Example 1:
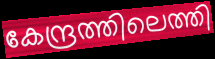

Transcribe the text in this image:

കേന്ദ്രത്തിലെത്തി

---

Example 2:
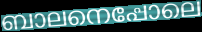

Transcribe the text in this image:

ബാലനെപ്പോലെ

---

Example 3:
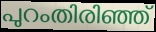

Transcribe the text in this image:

പുറംതിരിഞ്ഞ്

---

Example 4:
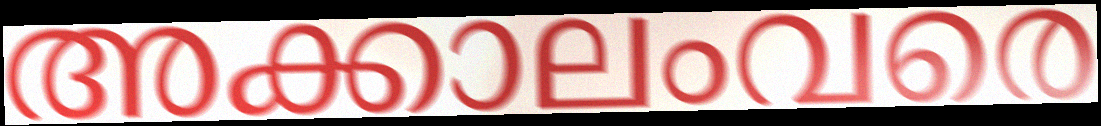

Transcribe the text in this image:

അക്കാലംവരെ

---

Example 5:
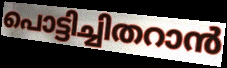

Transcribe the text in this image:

പൊട്ടിച്ചിതറാൻ